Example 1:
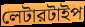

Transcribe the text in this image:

লেটারটাইপ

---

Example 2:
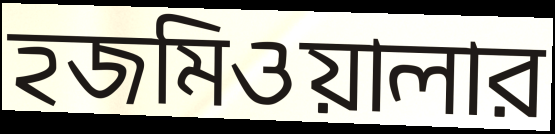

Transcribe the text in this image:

হজমিওয়ালার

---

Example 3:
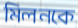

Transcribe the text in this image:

মিলনকে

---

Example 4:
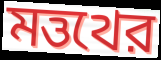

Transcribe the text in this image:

মত্তথের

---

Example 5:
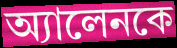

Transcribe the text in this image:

অ্যালেনকে